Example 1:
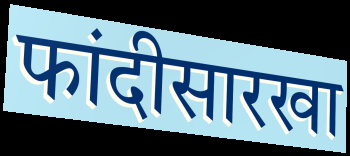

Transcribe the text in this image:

फांदीसारखा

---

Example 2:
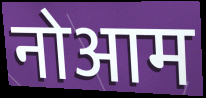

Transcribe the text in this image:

नोआम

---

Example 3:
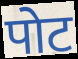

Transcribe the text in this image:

पोट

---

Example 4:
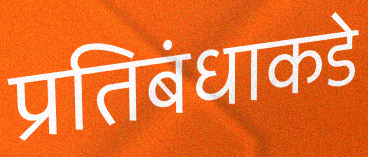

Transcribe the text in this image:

प्रतिबंधाकडे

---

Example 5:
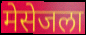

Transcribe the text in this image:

मेसेजला